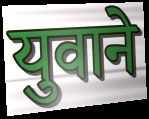
युवाने